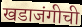
खडाजंगीची